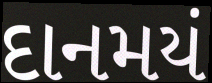
દાનમયં